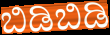
ಬಿಡಿಬಿಡಿ